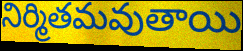
నిర్మితమవుతాయి